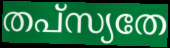
തപ്സ്യതേ